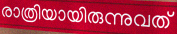
രാത്രിയായിരുന്നുവത്